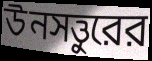
উনসত্তুরের